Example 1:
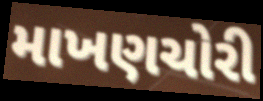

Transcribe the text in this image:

માખણચોરી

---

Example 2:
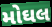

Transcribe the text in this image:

મોઘલ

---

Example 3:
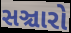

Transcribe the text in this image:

સઞ્ચારો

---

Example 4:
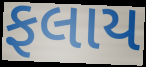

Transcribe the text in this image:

ફલાય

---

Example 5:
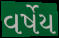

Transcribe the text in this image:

વર્ષેય